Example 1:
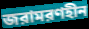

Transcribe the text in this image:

জরামরণহীন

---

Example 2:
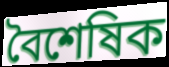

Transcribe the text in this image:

বৈশেষিক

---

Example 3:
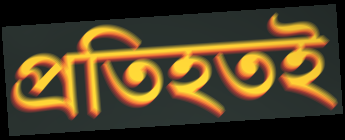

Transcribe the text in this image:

প্রতিহতই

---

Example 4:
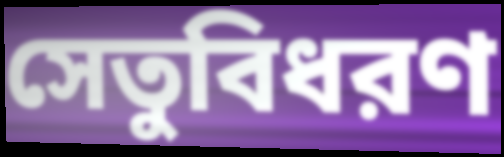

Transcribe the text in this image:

সেতুবিধরণ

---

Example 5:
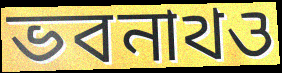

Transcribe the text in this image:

ভবনাথও